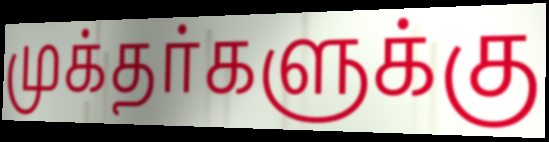
முக்தர்களுக்கு